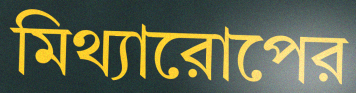
মিথ্যারোপের